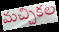
మచ్చికల